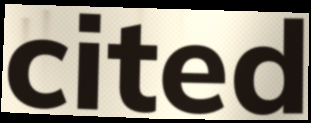
cited